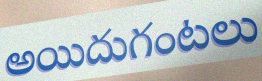
అయిదుగంటలు